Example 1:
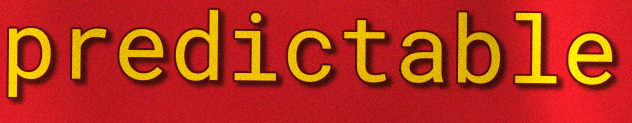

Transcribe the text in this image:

predictable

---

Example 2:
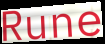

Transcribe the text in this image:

Rune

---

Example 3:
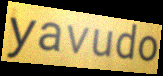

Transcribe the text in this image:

yavudo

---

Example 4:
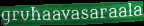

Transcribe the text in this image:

gruhaavasaraala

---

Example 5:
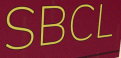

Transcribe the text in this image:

SBCL